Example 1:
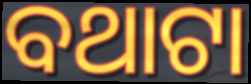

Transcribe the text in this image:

ବଥାଟା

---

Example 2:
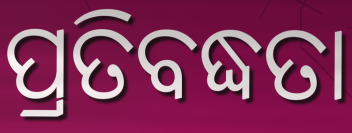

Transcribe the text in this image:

ପ୍ରତିବଦ୍ଧତା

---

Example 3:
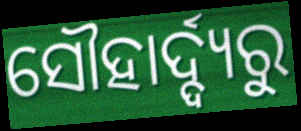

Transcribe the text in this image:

ସୌହାର୍ଦ୍ଦ୍ୟରୁ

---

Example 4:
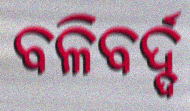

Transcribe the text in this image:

ବଳିବର୍ଦ୍ଦ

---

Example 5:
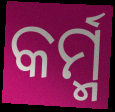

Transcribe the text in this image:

କର୍ମ୍ମ